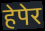
हेपेर